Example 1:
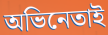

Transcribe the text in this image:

অভিনেতাই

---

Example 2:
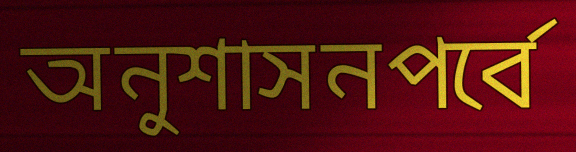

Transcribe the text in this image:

অনুশাসনপর্বে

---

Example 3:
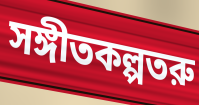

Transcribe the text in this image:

সঙ্গীতকল্পতরু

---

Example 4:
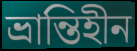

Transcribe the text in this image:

ভ্রান্তিহীন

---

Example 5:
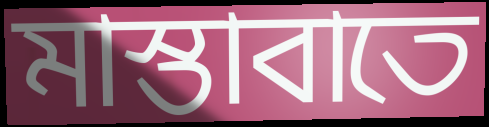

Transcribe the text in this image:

মাস্তাবাতে